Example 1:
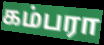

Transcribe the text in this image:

கம்பரா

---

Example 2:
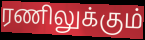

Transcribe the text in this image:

ரணிலுக்கும்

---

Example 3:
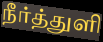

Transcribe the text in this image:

நீர்த்துளி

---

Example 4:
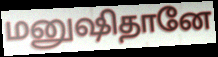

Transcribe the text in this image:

மனுஷிதானே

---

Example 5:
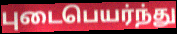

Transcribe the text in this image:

புடைபெயர்ந்து